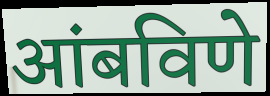
आंबविणे